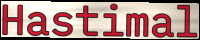
Hastimal